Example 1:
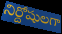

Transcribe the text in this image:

నిర్దోషులగా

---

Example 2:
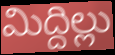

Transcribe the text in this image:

మిద్దిల్లు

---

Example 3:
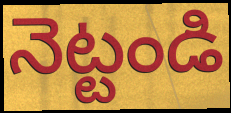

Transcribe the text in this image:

నెట్టండి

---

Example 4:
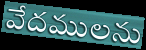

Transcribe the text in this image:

వేదములను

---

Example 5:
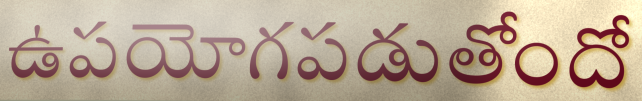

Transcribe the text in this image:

ఉపయోగపడుతోందో